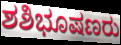
ಶಶಿಭೂಷಣರು